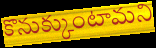
కొనుక్కుంటామని